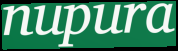
nupura